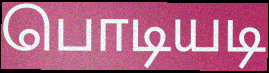
பொடியடி